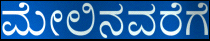
ಮೇಲಿನವರೆಗೆ